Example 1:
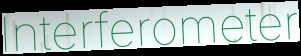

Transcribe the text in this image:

Interferometer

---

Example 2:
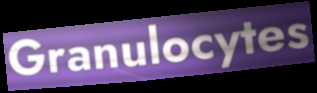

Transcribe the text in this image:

Granulocytes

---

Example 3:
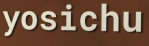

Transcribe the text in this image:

yosichu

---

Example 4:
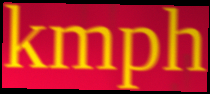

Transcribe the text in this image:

kmph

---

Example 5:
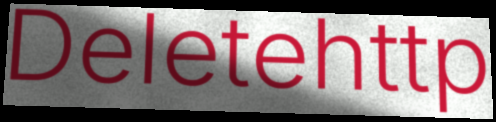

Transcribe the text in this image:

Deletehttp